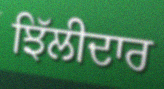
ਝਿੱਲੀਦਾਰ